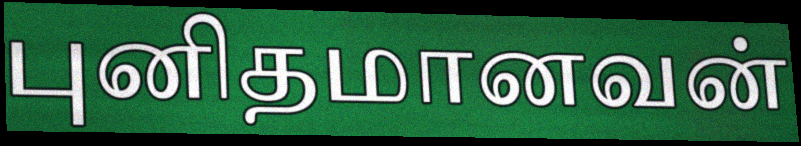
புனிதமானவன்